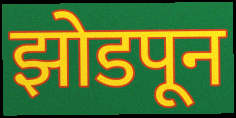
झोडपून